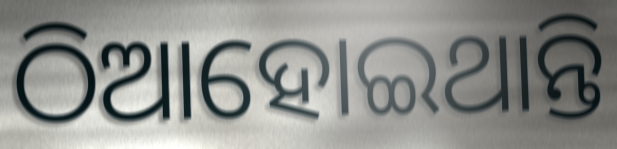
ଠିଆହୋଇଥାନ୍ତି